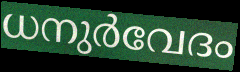
ധനുർവേദം